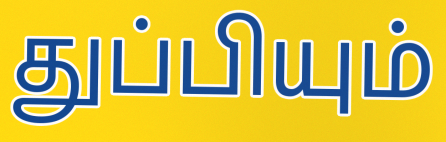
துப்பியும்